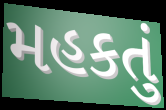
મહકતું